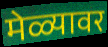
मेळ्यावर